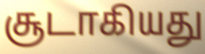
சூடாகியது